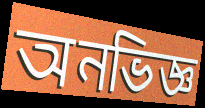
অনভিজ্ঞ